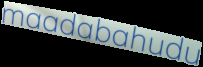
maadabahudu